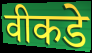
वीकडे